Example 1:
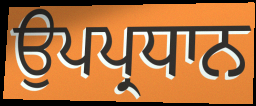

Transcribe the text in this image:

ਉਪਪ੍ਰਧਾਨ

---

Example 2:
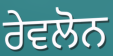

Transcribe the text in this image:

ਰੇਵਲੋਨ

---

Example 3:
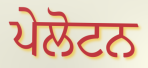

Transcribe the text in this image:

ਪੇਲੋਟਨ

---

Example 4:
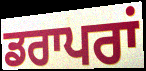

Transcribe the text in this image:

ਡਰਾਪਰਾਂ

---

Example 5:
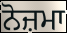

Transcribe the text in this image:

ਨੋਜ਼ਮਾ